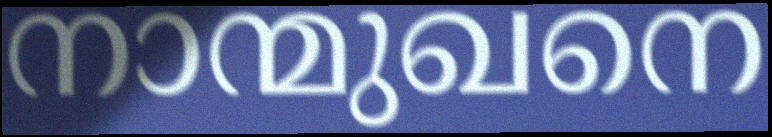
നാന്മുഖനെ